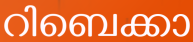
റിബെക്കാ